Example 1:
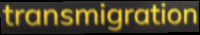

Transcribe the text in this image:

transmigration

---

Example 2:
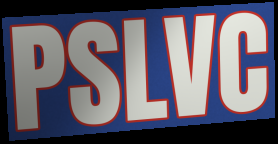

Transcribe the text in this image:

PSLVC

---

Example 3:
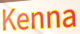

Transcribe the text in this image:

Kenna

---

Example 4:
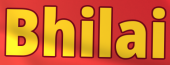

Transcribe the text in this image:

Bhilai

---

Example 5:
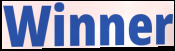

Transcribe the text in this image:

Winner